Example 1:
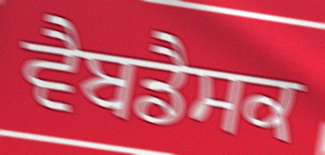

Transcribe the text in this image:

ਵੈਬਡੈਸਕ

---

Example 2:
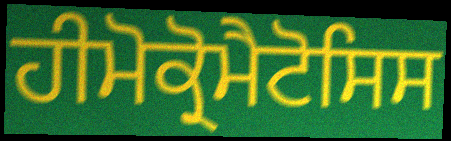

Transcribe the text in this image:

ਹੀਮੋਕ੍ਰੋਮੈਟੋਸਿਸ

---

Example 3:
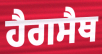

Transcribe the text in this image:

ਹੈਗਸੈਥ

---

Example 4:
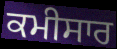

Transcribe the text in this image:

ਕਮੀਸਾਰ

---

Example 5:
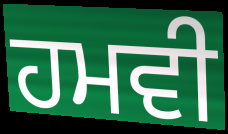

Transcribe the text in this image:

ਹਮਵੀ